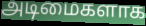
அடிமைகளாக